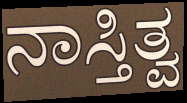
ನಾಸ್ತಿತ್ವ